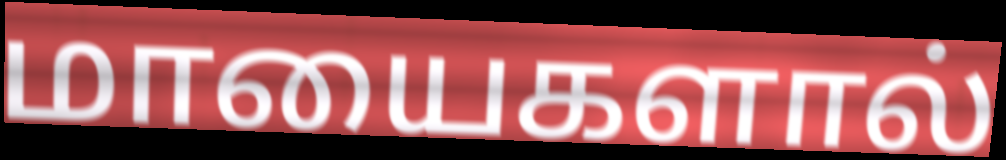
மாயைகளால்